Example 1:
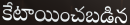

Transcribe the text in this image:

కేటాయించబడిన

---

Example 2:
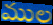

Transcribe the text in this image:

ముల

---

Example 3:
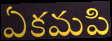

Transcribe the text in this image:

ఏకమపి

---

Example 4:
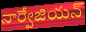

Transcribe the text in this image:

నార్వేజియన్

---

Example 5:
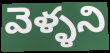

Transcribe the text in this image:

వెళ్ళని